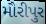
મૌરીપુર